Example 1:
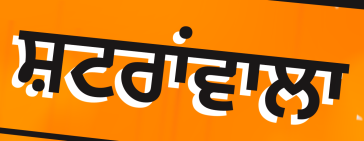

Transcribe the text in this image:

ਸ਼ਟਰਾਂਵਾਲਾ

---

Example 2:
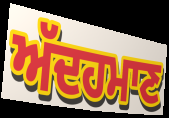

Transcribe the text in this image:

ਅੱਦਹਮਾਣ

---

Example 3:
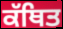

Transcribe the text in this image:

ਕੱਥਿਤ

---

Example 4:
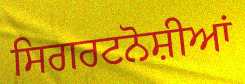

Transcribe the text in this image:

ਸਿਗਰਟਨੋਸ਼ੀਆਂ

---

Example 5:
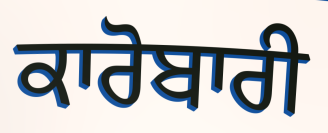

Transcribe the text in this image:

ਕਾਰੋਬਾਰੀ